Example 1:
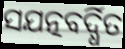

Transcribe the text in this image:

ସଯତ୍ନବର୍ଦ୍ଧିତ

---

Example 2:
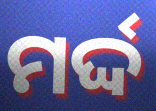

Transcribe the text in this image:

ମର୍ଦ୍ଦ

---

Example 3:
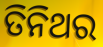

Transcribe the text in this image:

ତିନିଥର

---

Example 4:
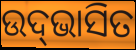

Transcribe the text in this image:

ଉଦ୍‍ଭାସିତ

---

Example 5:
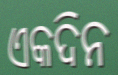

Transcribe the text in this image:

ଏକଦିନ